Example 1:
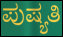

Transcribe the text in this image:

ಪುಷ್ಯತಿ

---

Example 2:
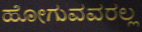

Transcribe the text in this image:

ಹೋಗುವವರಲ್ಲ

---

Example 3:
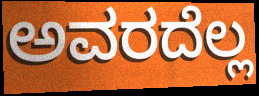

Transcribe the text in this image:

ಅವರದೆಲ್ಲ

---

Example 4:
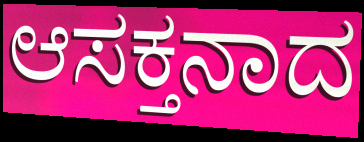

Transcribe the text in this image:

ಆಸಕ್ತನಾದ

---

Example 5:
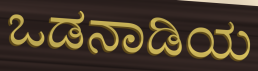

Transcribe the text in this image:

ಒಡನಾಡಿಯ